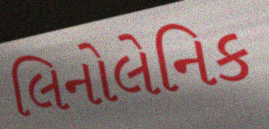
લિનોલેનિક